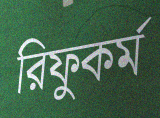
রিফুকর্ম